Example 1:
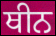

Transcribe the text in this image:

ਥੀਨ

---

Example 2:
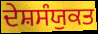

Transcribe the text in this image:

ਦੇਸ਼ਸੰਯੁਕਤ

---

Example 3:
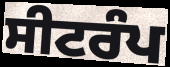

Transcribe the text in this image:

ਸੀਟਰੰਪ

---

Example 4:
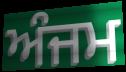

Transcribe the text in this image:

ਅੰਜਮ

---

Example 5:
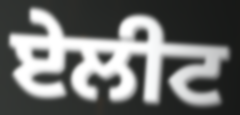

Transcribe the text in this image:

ਏਲੀਟ